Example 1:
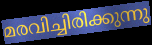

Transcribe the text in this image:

മരവിച്ചിരിക്കുന്നു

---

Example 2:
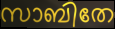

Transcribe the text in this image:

സാബിതേ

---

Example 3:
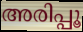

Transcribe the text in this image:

അരിപ്പൂ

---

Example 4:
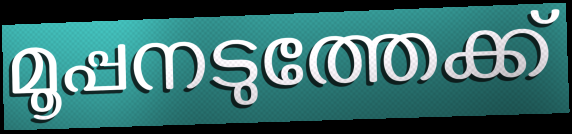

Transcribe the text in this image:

മൂപ്പനടുത്തേക്ക്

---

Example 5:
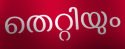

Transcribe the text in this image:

തെറ്റിയും